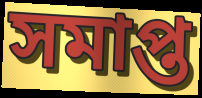
সমাপ্ত